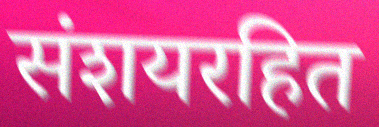
संशयरहित